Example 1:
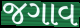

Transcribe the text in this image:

જગાવ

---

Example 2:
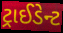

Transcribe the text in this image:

ટ્રાઈડેન્ટ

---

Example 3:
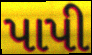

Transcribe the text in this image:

પાપી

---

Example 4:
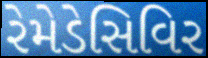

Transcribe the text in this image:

રેમેડેસિવિર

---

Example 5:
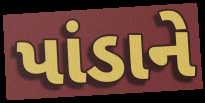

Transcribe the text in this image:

પાંડાને